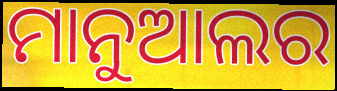
ମାନୁଆଲର